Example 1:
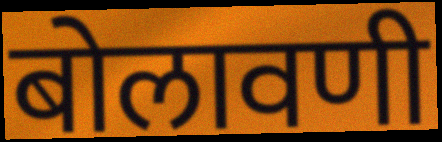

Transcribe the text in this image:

बोलावणी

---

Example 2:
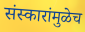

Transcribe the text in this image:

संस्कारांमुळेच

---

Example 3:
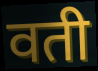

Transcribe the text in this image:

वती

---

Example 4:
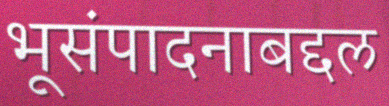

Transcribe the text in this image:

भूसंपादनाबद्दल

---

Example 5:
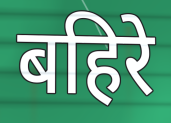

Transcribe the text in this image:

बहिरे